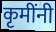
कृमींनी